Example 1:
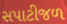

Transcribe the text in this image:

સપાટીજળ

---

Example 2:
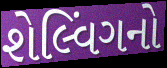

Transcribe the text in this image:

શેલ્વિંગનો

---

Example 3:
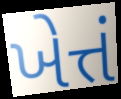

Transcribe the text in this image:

ખેત્તં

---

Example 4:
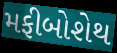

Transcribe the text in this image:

મફીબોશેથ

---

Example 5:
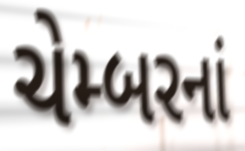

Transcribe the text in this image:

ચેમ્બરનાં